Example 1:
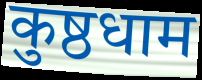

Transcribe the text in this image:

कुष्ठधाम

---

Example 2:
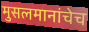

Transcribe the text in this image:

मुसलमानांचेच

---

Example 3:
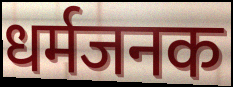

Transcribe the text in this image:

धर्मजनक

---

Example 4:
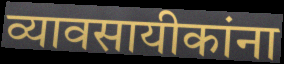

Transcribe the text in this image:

व्यावसायीकांना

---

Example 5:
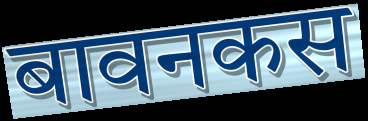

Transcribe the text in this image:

बावनकस